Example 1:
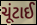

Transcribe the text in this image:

ચૂંટાઈ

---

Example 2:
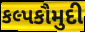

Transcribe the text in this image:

કલ્પકૌમુદી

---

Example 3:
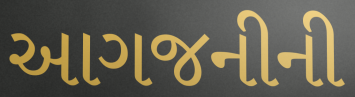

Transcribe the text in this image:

આગજનીની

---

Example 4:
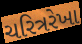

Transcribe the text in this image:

ચરિત્રરેખા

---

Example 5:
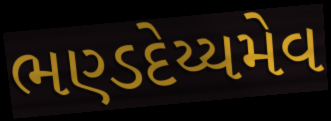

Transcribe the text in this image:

ભણ્ડદેય્યમેવ